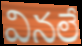
వినలే